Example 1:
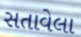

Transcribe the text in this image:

સતાવેલા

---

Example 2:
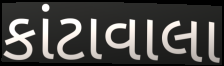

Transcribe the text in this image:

કાંટાવાલા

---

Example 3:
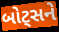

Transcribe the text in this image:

બોટ્સને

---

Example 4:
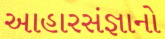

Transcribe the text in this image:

આહારસંજ્ઞાનો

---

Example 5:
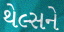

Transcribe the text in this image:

થેલ્સને